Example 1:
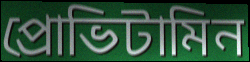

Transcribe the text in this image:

প্রোভিটামিন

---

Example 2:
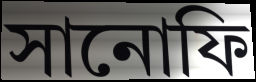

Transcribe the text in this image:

সানোফি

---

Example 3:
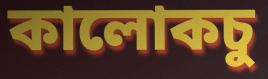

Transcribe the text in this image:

কালোকচু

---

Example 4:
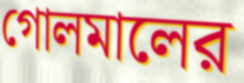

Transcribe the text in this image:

গোলমালের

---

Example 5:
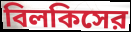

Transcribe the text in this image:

বিলকিসের